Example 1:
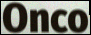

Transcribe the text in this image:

Onco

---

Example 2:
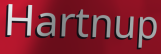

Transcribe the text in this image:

Hartnup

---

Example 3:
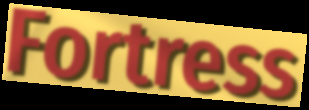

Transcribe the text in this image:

Fortress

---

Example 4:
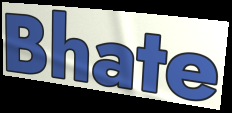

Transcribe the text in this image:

Bhate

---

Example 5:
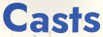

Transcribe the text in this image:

Casts